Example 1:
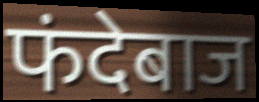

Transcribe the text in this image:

फंदेबाज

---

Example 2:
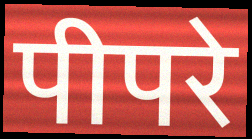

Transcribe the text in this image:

पीपरे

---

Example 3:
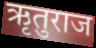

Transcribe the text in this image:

ऋृतुराज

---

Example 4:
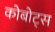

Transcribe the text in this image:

कोबोट्स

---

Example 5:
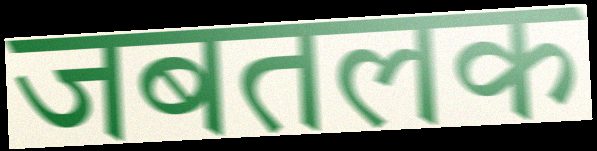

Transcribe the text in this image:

जबतलक